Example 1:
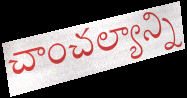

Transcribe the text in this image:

చాంచల్యాన్ని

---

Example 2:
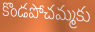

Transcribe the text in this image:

కొండపోచమ్మకు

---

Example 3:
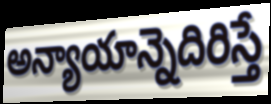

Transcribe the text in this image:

అన్యాయాన్నెదిరిస్తే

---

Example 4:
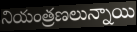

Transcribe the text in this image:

నియంత్రణలున్నాయి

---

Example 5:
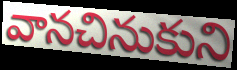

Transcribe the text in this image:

వానచినుకుని